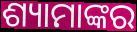
ଶ୍ୟାମାଙ୍କର